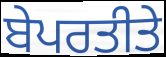
ਬੇਪਰਤੀਤੇ